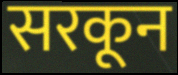
सरकून